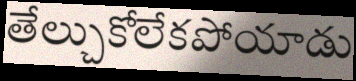
తేల్చుకోలేకపోయాడు